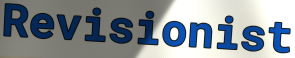
Revisionist